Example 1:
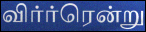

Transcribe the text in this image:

விர்ர்ரென்று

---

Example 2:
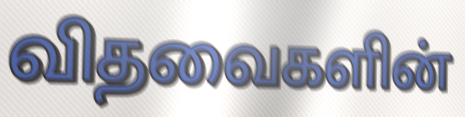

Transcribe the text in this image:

விதவைகளின்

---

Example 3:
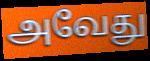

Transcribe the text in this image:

அவேது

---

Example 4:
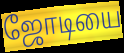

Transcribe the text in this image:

ஜோடியை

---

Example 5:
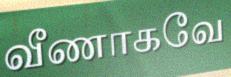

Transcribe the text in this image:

வீணாகவே